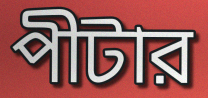
পীটার